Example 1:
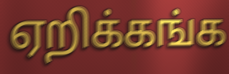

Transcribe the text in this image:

ஏறிக்கங்க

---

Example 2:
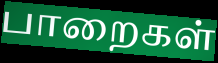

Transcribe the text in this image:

பாறைகள்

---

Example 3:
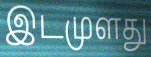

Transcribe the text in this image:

இடமுளது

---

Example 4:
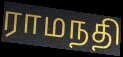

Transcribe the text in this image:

ராமநதி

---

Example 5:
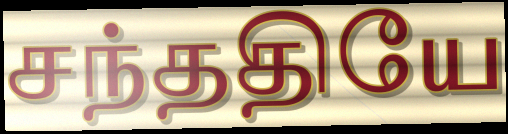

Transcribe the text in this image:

சந்ததியே